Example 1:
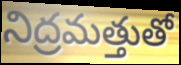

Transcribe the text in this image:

నిద్రమత్తుతో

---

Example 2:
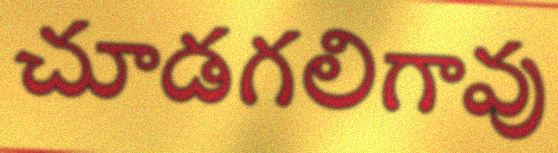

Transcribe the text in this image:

చూడగలిగావు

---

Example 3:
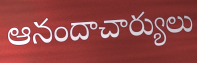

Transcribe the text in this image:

ఆనందాచార్యులు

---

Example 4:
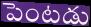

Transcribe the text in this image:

పెంటడు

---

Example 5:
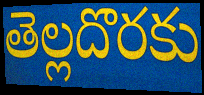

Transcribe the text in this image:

తెల్లదొరకు